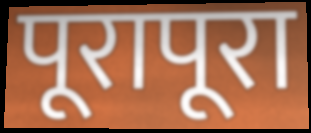
पूरापूरा